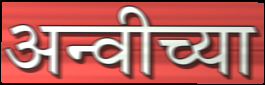
अन्वीच्या